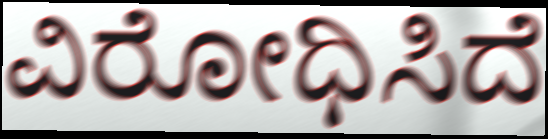
ವಿರೋಧಿಸಿದೆ